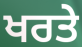
ਖਰਤੇ